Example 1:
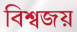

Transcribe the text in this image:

বিশ্বজয়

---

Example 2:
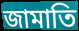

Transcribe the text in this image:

জামাতি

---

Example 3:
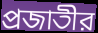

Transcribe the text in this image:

প্রজাতীর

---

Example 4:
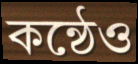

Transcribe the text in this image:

কন্ঠেও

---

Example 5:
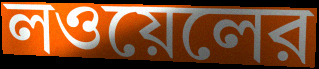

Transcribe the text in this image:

লওয়েলের